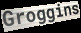
Groggins